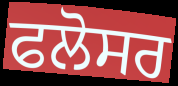
ਫਲੋਸਰ